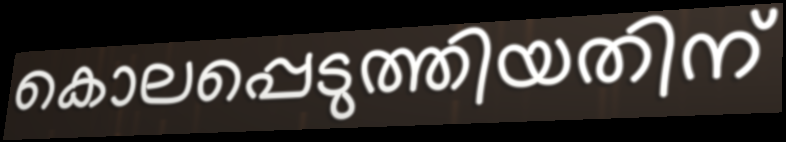
കൊലപ്പെടുത്തിയതിന്